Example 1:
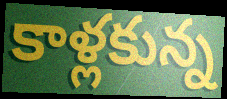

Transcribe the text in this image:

కాళ్లకున్న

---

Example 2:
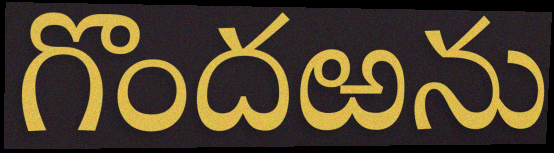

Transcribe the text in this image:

గొందఱను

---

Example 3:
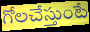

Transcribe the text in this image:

గోలచేస్తుంటే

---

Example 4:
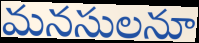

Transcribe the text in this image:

మనసులనూ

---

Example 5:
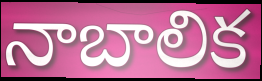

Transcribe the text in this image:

నాబాలిక